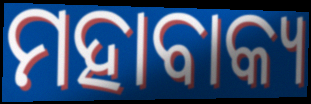
ମହାବାକ୍ୟ